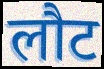
लौट